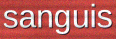
sanguis